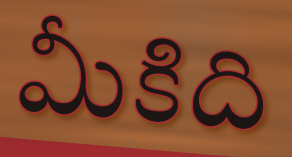
మీకిది